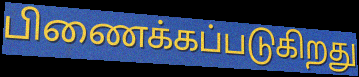
பிணைக்கப்படுகிறது